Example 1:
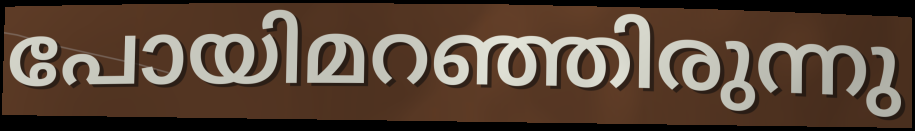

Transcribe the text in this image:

പോയിമറഞ്ഞിരുന്നു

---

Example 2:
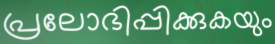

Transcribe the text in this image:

പ്രലോഭിപ്പിക്കുകയും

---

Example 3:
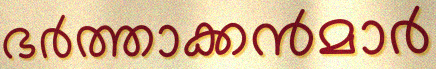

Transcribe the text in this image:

ഭർത്താക്കൻമാർ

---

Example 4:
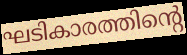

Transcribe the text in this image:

ഘടികാരത്തിന്റെ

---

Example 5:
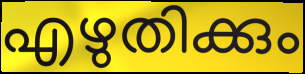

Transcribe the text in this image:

എഴുതിക്കും